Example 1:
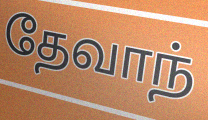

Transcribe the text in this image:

தேவாந்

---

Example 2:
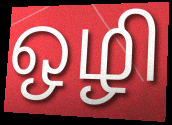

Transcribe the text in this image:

ஒழி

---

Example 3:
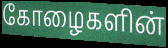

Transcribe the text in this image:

கோழைகளின்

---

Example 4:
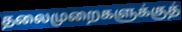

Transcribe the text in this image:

தலைமுறைகளுக்குத்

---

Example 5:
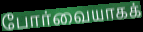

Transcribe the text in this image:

போர்வையாகக்